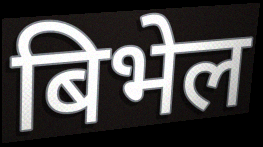
बिभेल